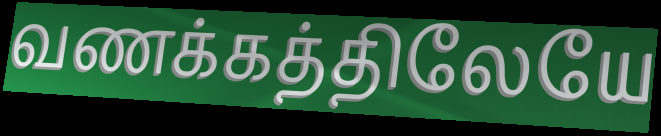
வணக்கத்திலேயே